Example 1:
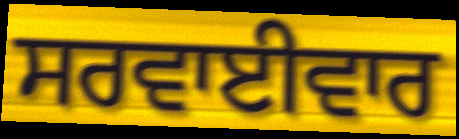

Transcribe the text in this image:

ਸਰਵਾਈਵਾਰ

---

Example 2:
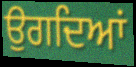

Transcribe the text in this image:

ਉਗਦਿਆਂ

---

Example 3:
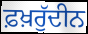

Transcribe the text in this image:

ਫ਼ਖ਼ਰੁੱਦੀਨ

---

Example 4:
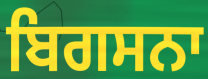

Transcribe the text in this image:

ਬਿਗਸਨਾ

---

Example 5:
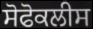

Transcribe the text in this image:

ਸੋਫੋਕਲੀਸ